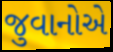
જુવાનોએ